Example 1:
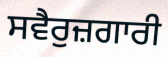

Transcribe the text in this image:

ਸਵੈਰੁਜ਼ਗਾਰੀ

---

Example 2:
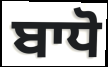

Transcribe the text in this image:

ਬਾਧੋ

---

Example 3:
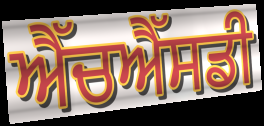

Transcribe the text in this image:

ਐੱਚਐੱਸਡੀ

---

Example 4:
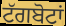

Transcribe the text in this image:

ਟੱਗਬੋਟਾਂ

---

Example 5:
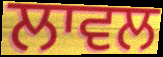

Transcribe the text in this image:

ਲਾਵਲ